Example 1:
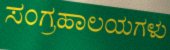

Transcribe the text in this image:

ಸಂಗ್ರಹಾಲಯಗಳು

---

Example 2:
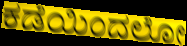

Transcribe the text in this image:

ಕಡೆಯಿಂದಲೋ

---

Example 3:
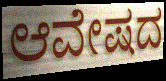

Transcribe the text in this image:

ಆವೇಷದ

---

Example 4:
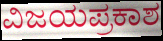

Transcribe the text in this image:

ವಿಜಯಪ್ರಕಾಶ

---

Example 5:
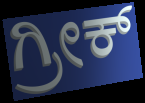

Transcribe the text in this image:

ಗ್ರೀಕ್